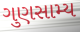
ગુણસામ્ય